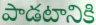
పాడటానికి